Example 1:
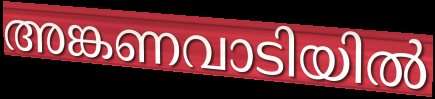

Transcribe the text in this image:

അങ്കണവാടിയിൽ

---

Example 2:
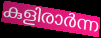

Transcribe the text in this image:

കുളിരാർന്ന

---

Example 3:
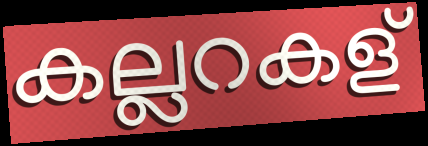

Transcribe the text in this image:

കല്ലറകള്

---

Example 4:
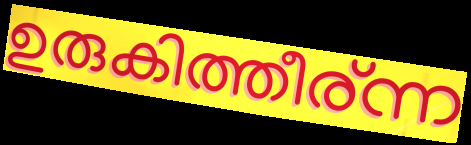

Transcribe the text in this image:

ഉരുകിത്തീര്ന്ന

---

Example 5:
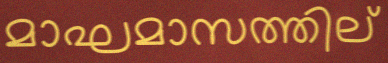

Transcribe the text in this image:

മാഘമാസത്തില്